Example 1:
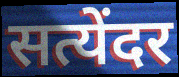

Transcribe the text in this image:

सत्येंदर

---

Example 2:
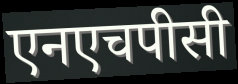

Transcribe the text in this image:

एनएचपीसी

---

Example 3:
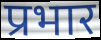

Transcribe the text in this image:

प्रभार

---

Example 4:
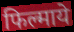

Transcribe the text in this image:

फिल्माये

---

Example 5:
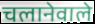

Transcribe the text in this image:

चलानेवाले